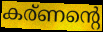
കര്ണന്റെ